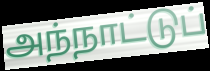
அந்நாட்டுப்